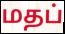
மதப்